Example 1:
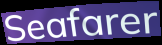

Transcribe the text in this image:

Seafarer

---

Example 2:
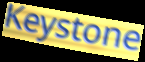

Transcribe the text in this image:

Keystone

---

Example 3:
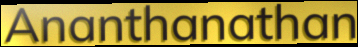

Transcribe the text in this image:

Ananthanathan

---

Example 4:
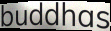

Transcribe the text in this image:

buddhas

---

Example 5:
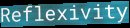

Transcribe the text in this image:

Reflexivity